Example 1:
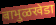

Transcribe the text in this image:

बाभुळखेडा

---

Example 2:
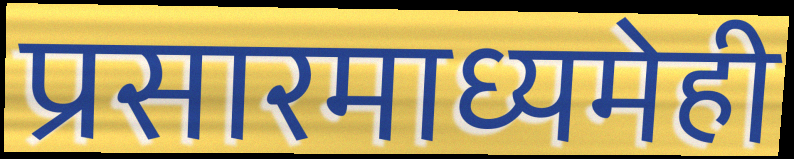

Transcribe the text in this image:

प्रसारमाध्यमेही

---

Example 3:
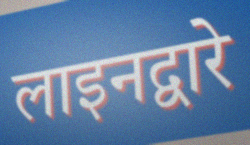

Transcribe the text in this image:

लाइनद्वारे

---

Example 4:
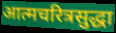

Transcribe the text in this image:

आत्मचरित्रसुद्धा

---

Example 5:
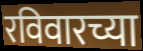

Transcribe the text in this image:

रविवारच्या